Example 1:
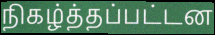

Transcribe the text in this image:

நிகழ்த்தப்பட்டன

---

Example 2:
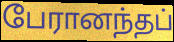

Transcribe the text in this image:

பேரானந்தப்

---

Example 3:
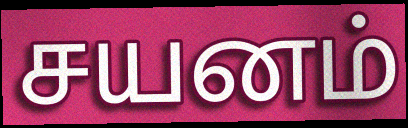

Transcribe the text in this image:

சயனம்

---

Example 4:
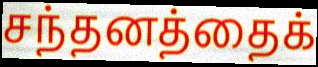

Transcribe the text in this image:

சந்தனத்தைக்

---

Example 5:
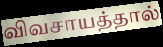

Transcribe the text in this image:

விவசாயத்தால்